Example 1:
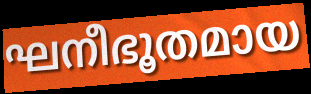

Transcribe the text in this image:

ഘനീഭൂതമായ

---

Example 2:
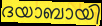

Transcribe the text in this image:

ദയാബായി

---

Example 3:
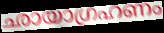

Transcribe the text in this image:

ഛായാഗ്രഹണം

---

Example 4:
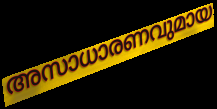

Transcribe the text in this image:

അസാധാരണവുമായ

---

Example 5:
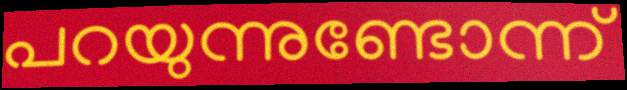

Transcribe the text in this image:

പറയുന്നുണ്ടോന്ന്